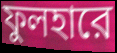
ফুলহারে